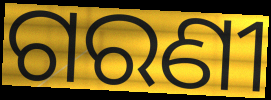
ଗରଣୀ